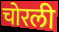
चोरली